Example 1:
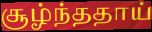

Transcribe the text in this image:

சூழ்ந்ததாய்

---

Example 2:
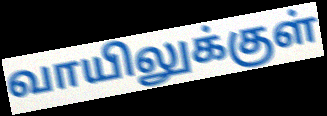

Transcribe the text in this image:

வாயிலுக்குள்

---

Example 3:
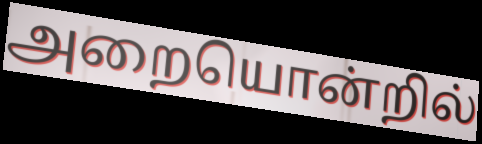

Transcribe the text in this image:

அறையொன்றில்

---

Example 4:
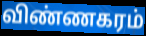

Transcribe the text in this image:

விண்ணகரம்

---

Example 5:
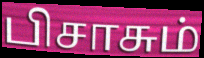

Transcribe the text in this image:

பிசாசும்